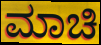
ಮಾಚಿ